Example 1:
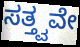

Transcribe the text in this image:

ಸತ್ತ್ವವೇ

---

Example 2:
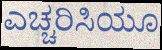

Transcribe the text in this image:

ಎಚ್ಚರಿಸಿಯೂ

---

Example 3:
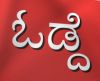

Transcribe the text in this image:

ಓಡ್ದೆ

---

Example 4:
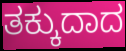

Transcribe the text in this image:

ತಕ್ಕುದಾದ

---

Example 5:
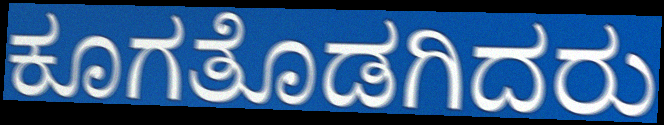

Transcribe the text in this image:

ಕೂಗತೊಡಗಿದರು